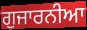
ਗੁਜਾਰਨੀਆ